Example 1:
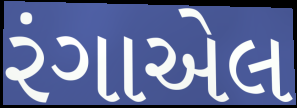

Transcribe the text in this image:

રંગાએલ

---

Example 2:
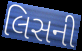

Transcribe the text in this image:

લિસની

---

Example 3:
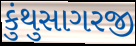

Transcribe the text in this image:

કુંથુસાગરજી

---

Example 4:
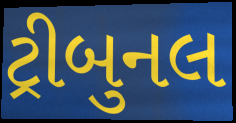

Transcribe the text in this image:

ટ્રીબુનલ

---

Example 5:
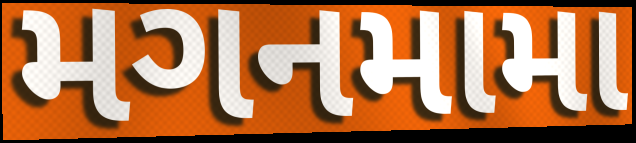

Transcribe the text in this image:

મગનમામા